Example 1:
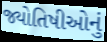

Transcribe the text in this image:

જ્યોતિષીઓનું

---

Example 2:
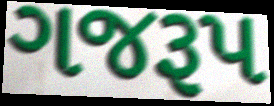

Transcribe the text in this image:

ગજરૂપ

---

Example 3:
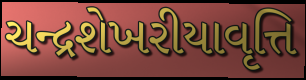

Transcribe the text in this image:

ચન્દ્રશેખરીયાવૃત્તિ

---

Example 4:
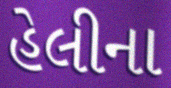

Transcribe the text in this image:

હેલીના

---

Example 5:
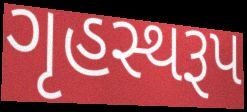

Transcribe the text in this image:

ગૃહસ્થરૂપ